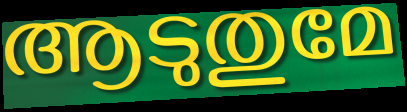
ആടുതുമേ